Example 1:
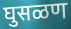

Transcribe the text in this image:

घुसळण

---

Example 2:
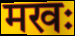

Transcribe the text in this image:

मखः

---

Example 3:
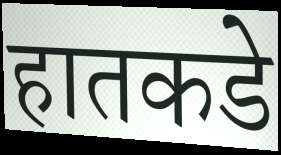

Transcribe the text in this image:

हातकडे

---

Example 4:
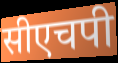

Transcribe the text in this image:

सीएचपी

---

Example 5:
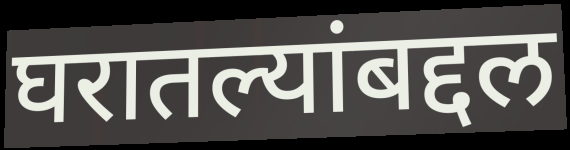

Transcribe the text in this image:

घरातल्यांबद्दल